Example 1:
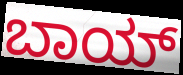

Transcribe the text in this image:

ಬಾಯ್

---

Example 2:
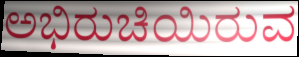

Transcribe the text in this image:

ಅಭಿರುಚಿಯಿರುವ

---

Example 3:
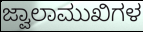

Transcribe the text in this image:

ಜ್ವಾಲಾಮುಖಿಗಳ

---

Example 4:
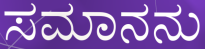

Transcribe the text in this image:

ಸಮಾನನು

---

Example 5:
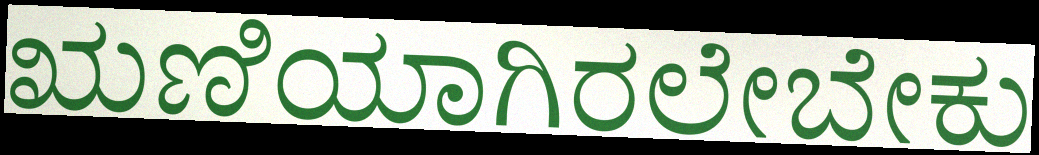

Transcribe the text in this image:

ಋಣಿಯಾಗಿರಲೇಬೇಕು